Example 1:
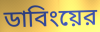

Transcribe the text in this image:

ডাবিংয়ের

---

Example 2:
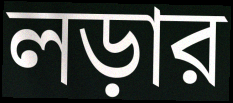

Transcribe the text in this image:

লড়ার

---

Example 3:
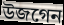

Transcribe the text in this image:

উজগেন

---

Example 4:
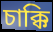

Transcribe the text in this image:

চাক্কি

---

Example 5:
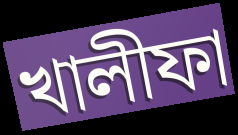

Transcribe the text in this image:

খালীফা